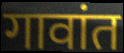
गावांत